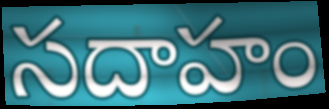
సదాహం